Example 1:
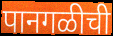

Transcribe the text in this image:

पानगळीची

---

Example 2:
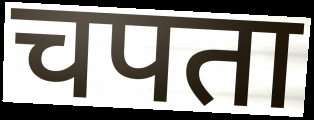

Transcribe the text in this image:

चपता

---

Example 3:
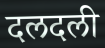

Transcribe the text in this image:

दलदली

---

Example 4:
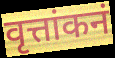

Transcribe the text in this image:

वृत्तांकनं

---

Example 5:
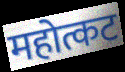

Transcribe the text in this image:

महोत्कट